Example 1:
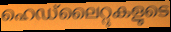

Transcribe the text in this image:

ഹെഡ്‌ലൈറ്റുകളുടെ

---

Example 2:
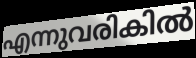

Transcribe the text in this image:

എന്നുവരികിൽ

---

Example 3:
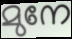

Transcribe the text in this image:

മുനേ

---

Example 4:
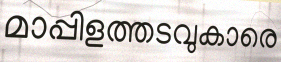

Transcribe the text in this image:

മാപ്പിളത്തടവുകാരെ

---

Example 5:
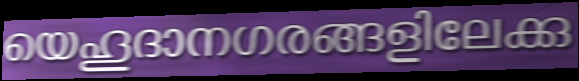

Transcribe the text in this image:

യെഹൂദാനഗരങ്ങളിലേക്കു